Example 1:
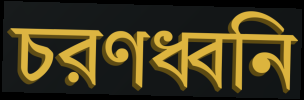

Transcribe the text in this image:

চরণধ্বনি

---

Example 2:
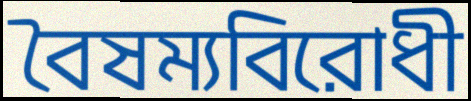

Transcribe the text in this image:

বৈষম্যবিরোধী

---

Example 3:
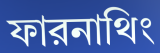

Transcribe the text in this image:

ফারনাথিং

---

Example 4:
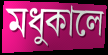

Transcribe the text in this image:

মধুকালে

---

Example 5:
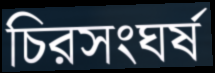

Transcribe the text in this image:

চিরসংঘর্ষ